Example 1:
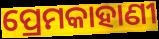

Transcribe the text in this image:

ପ୍ରେମକାହାଣୀ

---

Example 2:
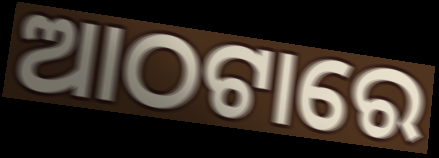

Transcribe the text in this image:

ଆଠଟାରେ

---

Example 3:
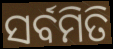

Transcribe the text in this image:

ସର୍ବମିତି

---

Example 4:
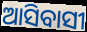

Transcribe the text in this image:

ଆସିବାସୀ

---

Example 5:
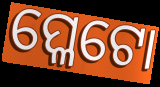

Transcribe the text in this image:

ପ୍ଳେଟୋ